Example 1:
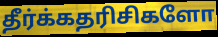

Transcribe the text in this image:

தீர்க்கதரிசிகளோ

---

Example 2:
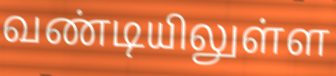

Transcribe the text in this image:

வண்டியிலுள்ள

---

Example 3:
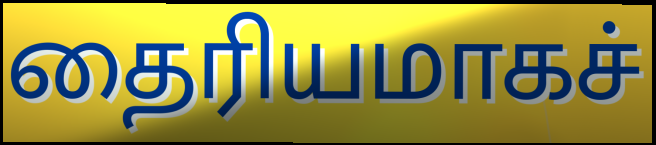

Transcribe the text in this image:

தைரியமாகச்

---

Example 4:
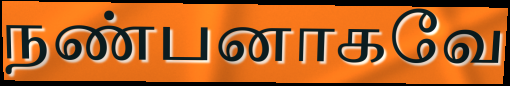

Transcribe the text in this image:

நண்பனாகவே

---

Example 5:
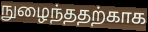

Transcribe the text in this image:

நுழைந்ததற்காக